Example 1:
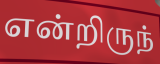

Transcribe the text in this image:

என்றிருந்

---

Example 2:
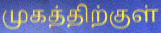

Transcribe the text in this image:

முகத்திற்குள்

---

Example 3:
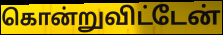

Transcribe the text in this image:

கொன்றுவிட்டேன்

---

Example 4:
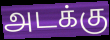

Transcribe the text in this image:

அடக்கு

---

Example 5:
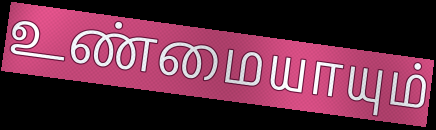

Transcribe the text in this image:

உண்மையாயும்